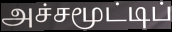
அச்சமூட்டிப்